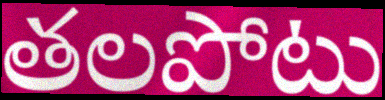
తలపోటు